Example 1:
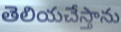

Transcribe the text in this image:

తెలియచేస్తాను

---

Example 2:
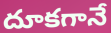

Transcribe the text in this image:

దూకగానే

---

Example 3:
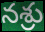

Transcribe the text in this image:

నశ్రు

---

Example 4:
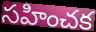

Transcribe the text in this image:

సహించక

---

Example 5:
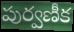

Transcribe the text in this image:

పుర్వణీక